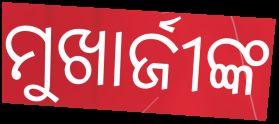
ମୁଖାର୍ଜୀଙ୍କ